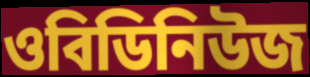
ওবিডিনিউজ